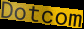
Dotcom